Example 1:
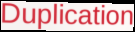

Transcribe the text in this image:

Duplication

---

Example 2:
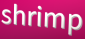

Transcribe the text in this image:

shrimp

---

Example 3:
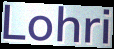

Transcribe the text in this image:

Lohri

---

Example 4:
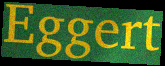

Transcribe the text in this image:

Eggert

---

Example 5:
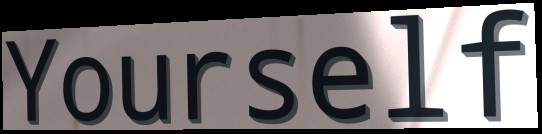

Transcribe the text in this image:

Yourself